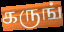
கருங்